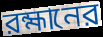
রহ্মানের